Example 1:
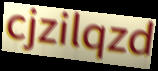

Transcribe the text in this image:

cjzilqzd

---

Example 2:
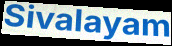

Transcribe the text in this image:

Sivalayam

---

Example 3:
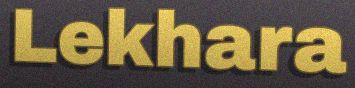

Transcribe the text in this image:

Lekhara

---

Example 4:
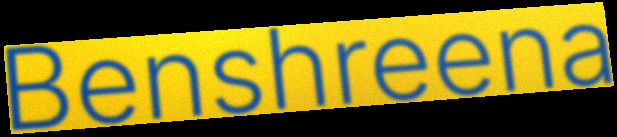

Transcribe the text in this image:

Benshreena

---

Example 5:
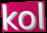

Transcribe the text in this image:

kol